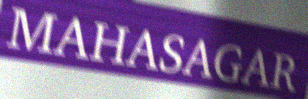
MAHASAGAR